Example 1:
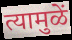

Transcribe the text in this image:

त्यामुळें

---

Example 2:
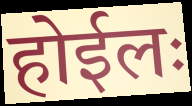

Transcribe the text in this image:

होईलः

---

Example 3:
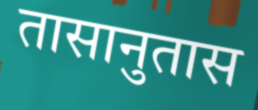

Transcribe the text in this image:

तासानुतास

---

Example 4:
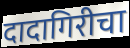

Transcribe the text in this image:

दादागिरीचा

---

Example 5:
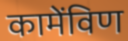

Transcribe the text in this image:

कामेंविण